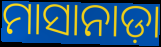
ମାସାନାଡ଼ା